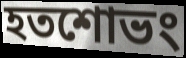
হতশোভং